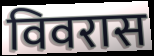
विवरास